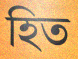
হিত